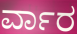
ರ್ವಾರ